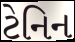
ટેનિન